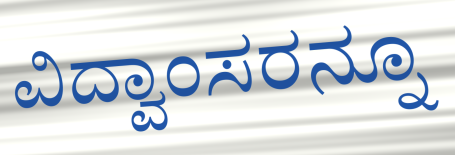
ವಿದ್ವಾಂಸರನ್ನೂ